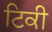
ਟਿਕੀ